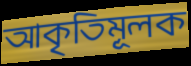
আকৃতিমূলক